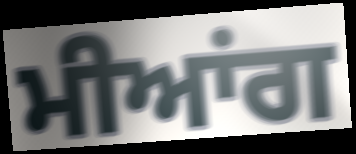
ਮੀਆਂਗ